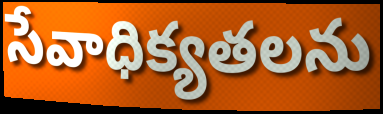
సేవాధిక్యతలను